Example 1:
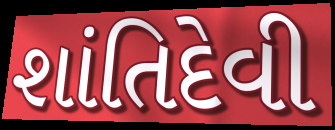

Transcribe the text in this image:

શાંતિદેવી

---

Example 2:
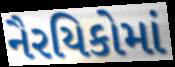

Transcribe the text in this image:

નૈરયિકોમાં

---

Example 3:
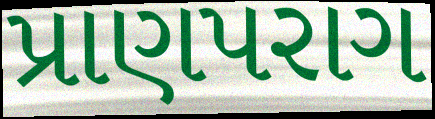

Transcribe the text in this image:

પ્રાણપરાગ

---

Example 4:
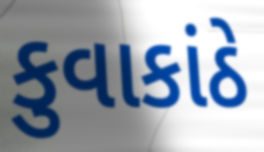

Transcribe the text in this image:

કુવાકાંઠે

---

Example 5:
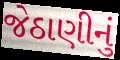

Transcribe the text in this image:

જેઠાણીનું